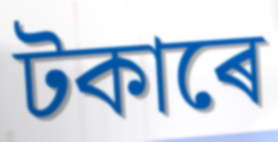
টকাৰে